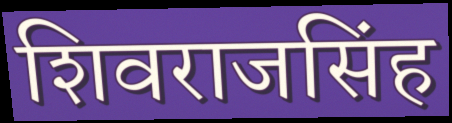
शिवराजसिंह